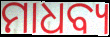
ମାଧବ୍ୟ